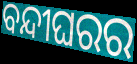
ବନ୍ଦୀଘରର